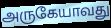
அருகேயாவது